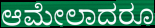
ಆಮೇಲಾದರೂ